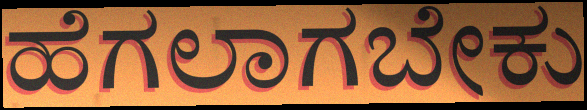
ಹೆಗಲಾಗಬೇಕು